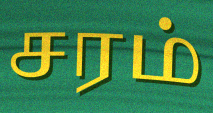
சரம்